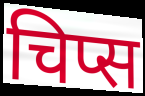
चिप्स